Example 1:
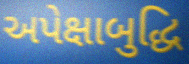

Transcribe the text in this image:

અપેક્ષાબુદ્ધિ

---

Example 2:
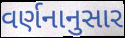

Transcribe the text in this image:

વર્ણનાનુસાર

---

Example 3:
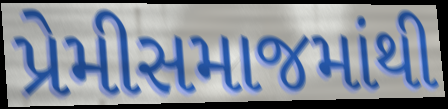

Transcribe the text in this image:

પ્રેમીસમાજમાંથી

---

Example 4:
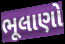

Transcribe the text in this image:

ભૂલાણો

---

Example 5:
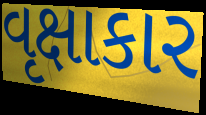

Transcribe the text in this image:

વૃક્ષાકાર